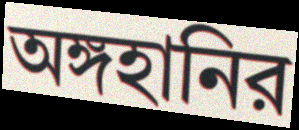
অঙ্গহানির